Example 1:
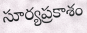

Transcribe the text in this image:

సూర్యప్రకాశం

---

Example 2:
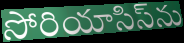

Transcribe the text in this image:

సోరియాసిస్‌ను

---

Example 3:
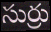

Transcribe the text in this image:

సుర్రు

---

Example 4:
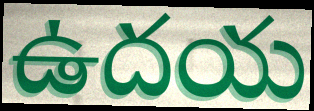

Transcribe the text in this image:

ఉదయ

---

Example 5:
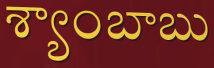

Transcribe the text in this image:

శ్యాంబాబు